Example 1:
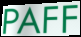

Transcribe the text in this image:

PAFF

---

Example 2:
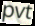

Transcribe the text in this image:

pvt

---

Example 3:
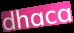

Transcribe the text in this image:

dhaca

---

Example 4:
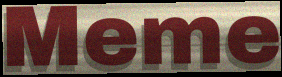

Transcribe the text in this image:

Meme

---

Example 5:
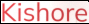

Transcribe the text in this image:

Kishore